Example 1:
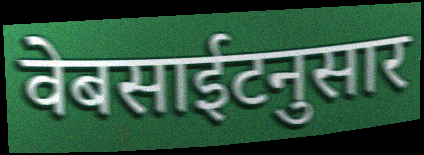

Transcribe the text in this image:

वेबसाईटनुसार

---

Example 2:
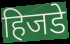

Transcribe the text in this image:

हिजडे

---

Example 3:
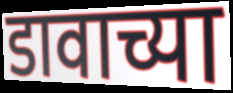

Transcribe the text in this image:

डावाच्या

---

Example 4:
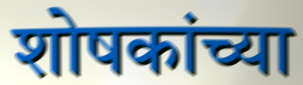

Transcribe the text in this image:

शोषकांच्या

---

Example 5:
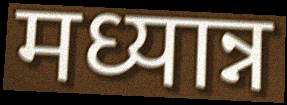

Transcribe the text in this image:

मध्यान्न